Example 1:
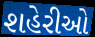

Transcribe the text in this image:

શહેરીઓ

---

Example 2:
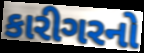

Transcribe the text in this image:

કારીગરનો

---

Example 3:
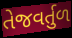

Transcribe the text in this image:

તેજવર્તુળ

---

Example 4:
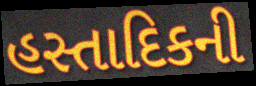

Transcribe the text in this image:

હસ્તાદિકની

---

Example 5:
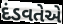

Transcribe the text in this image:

દંડવતેએ